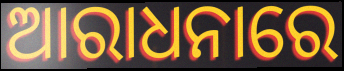
ଆରାଧନାରେ